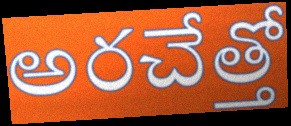
అరచేత్తో